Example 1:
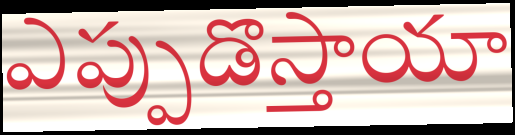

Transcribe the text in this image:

ఎప్పుడొస్తాయా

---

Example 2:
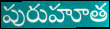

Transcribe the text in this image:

పురుహూత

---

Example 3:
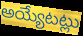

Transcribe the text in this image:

అయ్యేటట్లు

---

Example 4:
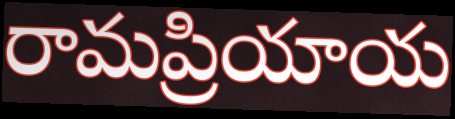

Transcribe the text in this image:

రామప్రియాయ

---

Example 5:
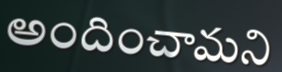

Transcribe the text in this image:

అందించామని